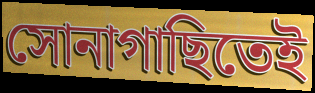
সোনাগাছিতেই